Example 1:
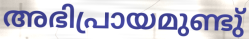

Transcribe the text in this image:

അഭിപ്രായമുണ്ടു്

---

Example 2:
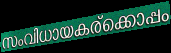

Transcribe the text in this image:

സംവിധായകര്ക്കൊപ്പം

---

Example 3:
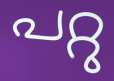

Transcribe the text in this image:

പറ്റു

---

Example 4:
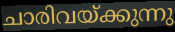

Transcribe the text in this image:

ചാരിവയ്ക്കുന്നു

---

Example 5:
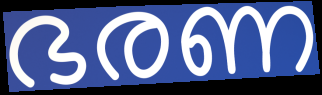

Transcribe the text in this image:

ഭരണ